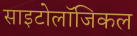
साइटोलॉजिकल